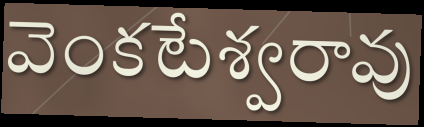
వెంకటేశ్వరావు